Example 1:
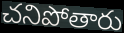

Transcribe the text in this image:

చనిపోతారు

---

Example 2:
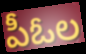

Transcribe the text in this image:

పీఓల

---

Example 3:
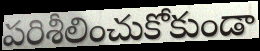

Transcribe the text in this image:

పరిశీలించుకోకుండా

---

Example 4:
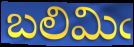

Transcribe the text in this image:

బలిమిఁ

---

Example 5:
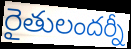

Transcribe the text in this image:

రైతులందర్నీ